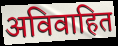
अविवाहित